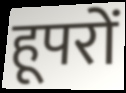
हूपरों